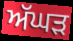
ਅੱਘੜ